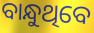
ବାନ୍ଧୁଥିବେ